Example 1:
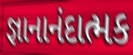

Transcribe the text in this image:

જ્ઞાનાનંદાત્મક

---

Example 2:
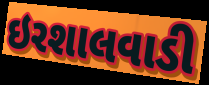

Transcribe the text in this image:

ઇરશાલવાડી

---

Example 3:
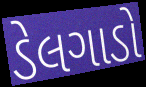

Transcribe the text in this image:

ડેલગાડો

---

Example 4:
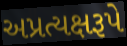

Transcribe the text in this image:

અપ્રત્યક્ષરૂપે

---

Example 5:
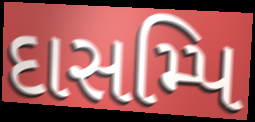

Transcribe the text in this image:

દાસમ્પિ